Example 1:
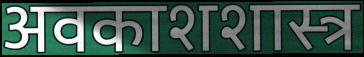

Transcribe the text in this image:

अवकाशशास्त्र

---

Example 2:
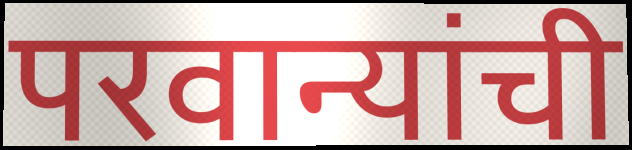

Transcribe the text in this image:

परवान्यांची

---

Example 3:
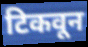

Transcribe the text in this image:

टिकवून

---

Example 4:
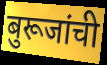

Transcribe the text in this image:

बुरूजांची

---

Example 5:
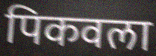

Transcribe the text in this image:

पिकवला